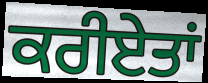
ਕਰੀਏਤਾਂ